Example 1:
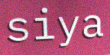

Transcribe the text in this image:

siya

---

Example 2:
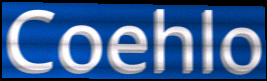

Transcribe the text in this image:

Coehlo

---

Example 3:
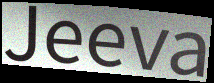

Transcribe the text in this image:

Jeeva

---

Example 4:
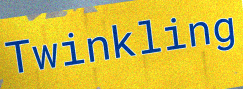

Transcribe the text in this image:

Twinkling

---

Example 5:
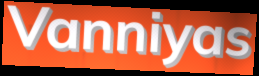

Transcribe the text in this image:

Vanniyas